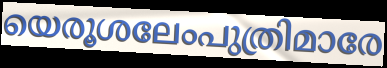
യെരൂശലേംപുത്രിമാരേ